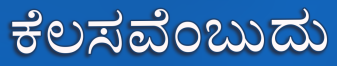
ಕೆಲಸವೆಂಬುದು